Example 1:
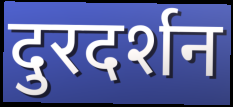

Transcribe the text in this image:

दुरदर्शन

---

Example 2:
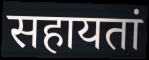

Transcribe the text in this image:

सहायतां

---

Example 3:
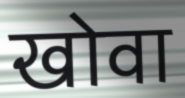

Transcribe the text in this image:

खोवा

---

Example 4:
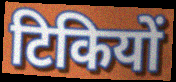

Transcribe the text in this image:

टिकियों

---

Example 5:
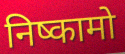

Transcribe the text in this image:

निष्कामो